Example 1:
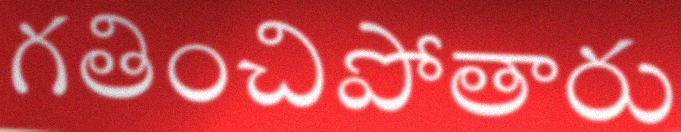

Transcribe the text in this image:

గతించిపోతారు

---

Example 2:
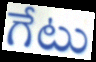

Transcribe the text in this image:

గేటు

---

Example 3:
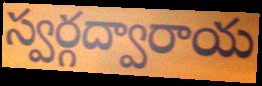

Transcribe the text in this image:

స్వర్గద్వారాయ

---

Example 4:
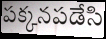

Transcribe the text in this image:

పక్కనపడేసి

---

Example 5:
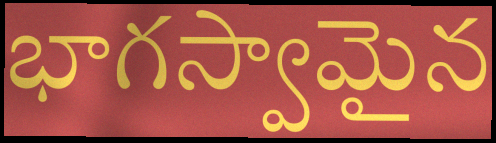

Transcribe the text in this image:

భాగస్వామైన